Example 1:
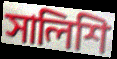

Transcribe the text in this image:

সালিশি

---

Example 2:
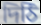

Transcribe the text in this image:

দিঠি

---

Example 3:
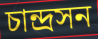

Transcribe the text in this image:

চান্দ্রসন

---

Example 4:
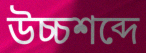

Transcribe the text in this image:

উচ্চশব্দে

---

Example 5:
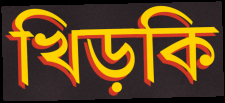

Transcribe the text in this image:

খিড়কি